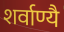
शर्वाण्यै